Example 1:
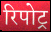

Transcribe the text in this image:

रिपोट्र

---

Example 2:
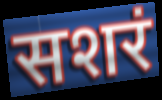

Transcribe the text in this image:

सशरं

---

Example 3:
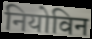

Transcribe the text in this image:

नियोविन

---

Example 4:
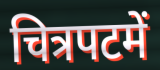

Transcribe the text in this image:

चित्रपटमें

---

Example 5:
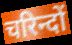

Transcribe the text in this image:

चरिन्दों